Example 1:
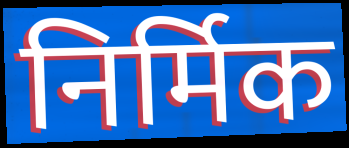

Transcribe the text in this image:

निर्मिक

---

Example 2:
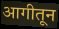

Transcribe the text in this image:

आगीतून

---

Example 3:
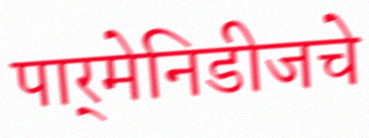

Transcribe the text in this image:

पार्मेनिडीजचे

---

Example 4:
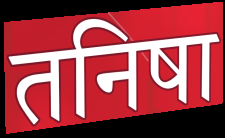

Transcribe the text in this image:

तनिषा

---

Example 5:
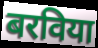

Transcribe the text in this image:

बरविया